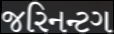
જરિનન્ટગ